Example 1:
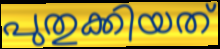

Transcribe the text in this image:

പുതുക്കിയത്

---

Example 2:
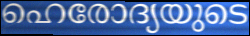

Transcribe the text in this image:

ഹെരോദ്യയുടെ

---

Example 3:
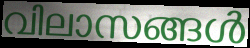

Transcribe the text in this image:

വിലാസങ്ങൾ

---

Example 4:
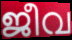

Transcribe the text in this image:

ജീവ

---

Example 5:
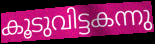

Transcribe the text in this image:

കൂടുവിട്ടകന്നു